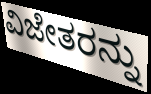
ವಿಜೇತರನ್ನು